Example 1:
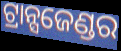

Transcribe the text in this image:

ଟ୍ରାନ୍ସଜେଣ୍ଡର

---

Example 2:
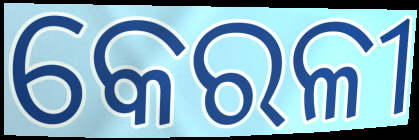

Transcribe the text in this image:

କେରଳୀ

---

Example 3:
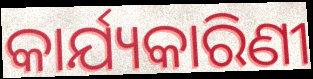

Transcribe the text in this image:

କାର୍ଯ୍ୟକାରିଣୀ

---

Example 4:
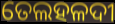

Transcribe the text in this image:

ତେଲହଳଦୀ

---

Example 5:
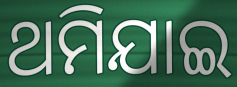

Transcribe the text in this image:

ଥମିଯାଇ